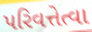
પરિવત્તેત્વા